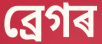
ব্ৰেগৰ